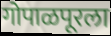
गोपाळपूरला